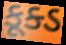
કૂક્ડ